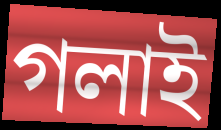
গলাই